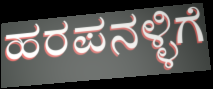
ಹರಪನಳ್ಳಿಗೆ